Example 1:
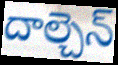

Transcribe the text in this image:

దాల్చెన్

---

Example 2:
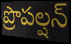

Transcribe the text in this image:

ప్రొపల్షన్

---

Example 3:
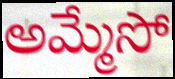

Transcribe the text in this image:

అమ్మేసో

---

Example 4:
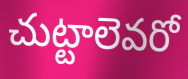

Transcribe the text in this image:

చుట్టాలెవరో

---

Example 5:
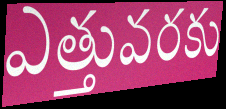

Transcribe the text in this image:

ఎత్తువరకు